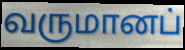
வருமானப்